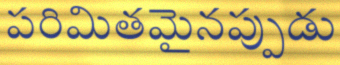
పరిమితమైనప్పుడు